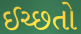
ઈચ્છતો